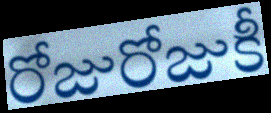
రోజురోజుకీ